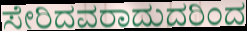
ಸೇರಿದವರಾದುದರಿಂದ